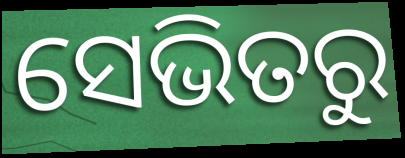
ସେଭିତରୁ